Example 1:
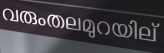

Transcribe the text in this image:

വരുംതലമുറയില്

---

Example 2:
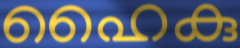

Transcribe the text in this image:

ഹൈകു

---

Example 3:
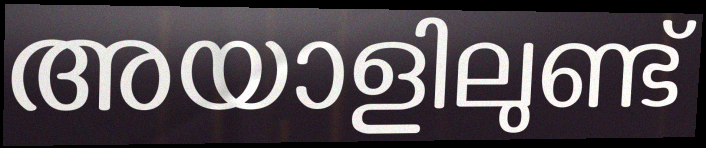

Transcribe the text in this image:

അയാളിലുണ്ട്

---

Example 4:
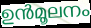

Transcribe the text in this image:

ഉൻമൂലനം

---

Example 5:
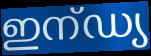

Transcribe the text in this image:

ഇന്ഡ്യ